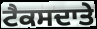
ਟੈਕਸਦਾਤੇ